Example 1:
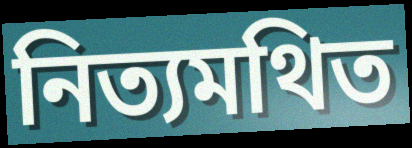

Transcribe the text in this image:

নিত্যমথিত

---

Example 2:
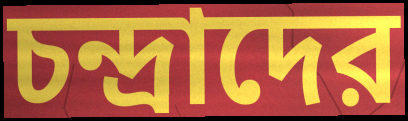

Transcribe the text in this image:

চন্দ্রাদের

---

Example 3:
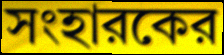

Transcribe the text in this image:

সংহারকের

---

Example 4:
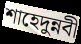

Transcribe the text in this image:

শাহেদুন্নবী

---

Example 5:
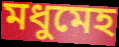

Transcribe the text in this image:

মধুমেহ